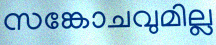
സങ്കോചവുമില്ല